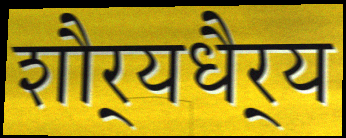
शौर्यधैर्य